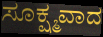
ಸೂಕ್ಷ್ಮವಾದ